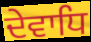
ਦੇਵਾਧਿ